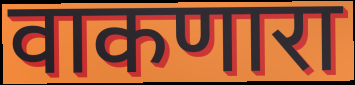
वाकणारा